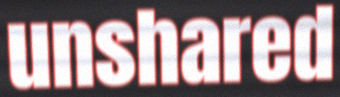
unshared